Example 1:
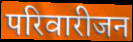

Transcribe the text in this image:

परिवारीजन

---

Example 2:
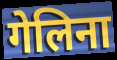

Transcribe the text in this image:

गेलिना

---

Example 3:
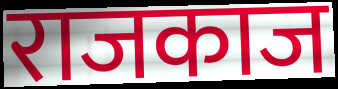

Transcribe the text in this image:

राजकाज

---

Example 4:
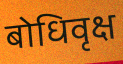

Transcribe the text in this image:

बोधिवृक्ष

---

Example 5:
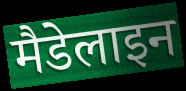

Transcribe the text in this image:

मैडेलाइन